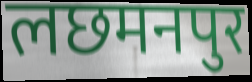
लछमनपुर